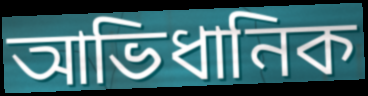
আভিধানিক